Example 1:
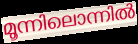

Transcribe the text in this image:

മൂന്നിലൊന്നിൽ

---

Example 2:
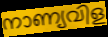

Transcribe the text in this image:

നാണ്യവിള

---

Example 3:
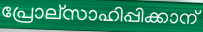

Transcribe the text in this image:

പ്രോല്സാഹിപ്പിക്കാന്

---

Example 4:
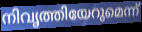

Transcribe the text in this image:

നിവൃത്തിയേറുമെന്ന്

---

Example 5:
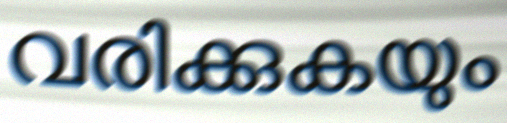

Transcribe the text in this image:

വരിക്കുകയും